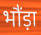
भौंड़ा